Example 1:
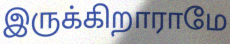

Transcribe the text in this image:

இருக்கிறாராமே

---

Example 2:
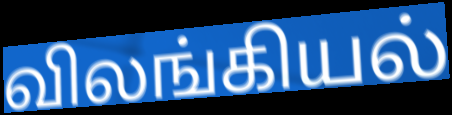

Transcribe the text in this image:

விலங்கியல்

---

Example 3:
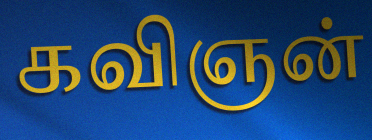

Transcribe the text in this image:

கவிஞன்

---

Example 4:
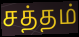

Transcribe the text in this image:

சத்தம்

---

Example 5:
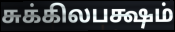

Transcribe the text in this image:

சுக்கிலபக்ஷம்